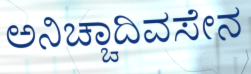
ಅನಿಚ್ಚಾದಿವಸೇನ